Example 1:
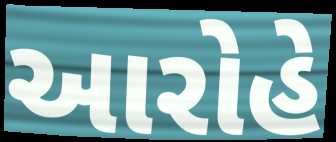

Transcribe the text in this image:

આરોહે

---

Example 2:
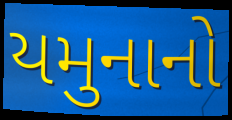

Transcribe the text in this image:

યમુનાનો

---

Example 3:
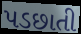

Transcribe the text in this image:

પડછાતી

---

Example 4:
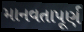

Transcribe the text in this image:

માનવતાપૂર્ણ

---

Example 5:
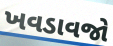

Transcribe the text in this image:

ખવડાવજો